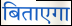
बिताएगा